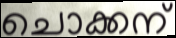
ചൊക്കന്